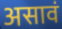
असावं